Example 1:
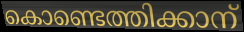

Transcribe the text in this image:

കൊണ്ടെത്തിക്കാന്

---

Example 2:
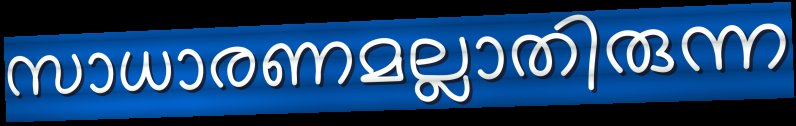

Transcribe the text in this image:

സാധാരണമല്ലാതിരുന്ന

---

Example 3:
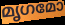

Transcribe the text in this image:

മൃഗമോ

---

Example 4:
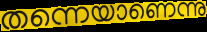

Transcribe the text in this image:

തന്നെയാണെന്നു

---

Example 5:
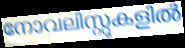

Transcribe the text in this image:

നോവലിസ്റ്റുകളിൽ